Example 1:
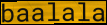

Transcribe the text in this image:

baalala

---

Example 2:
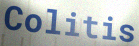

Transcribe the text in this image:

Colitis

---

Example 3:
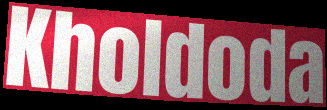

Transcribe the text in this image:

Kholdoda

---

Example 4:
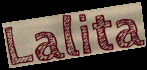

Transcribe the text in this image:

Lalita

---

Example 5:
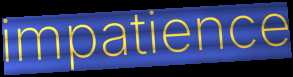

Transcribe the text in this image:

impatience